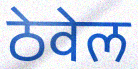
ठेवेल